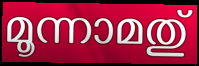
മൂന്നാമതു്